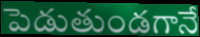
పెడుతుండగానే